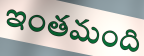
ఇంతమంది